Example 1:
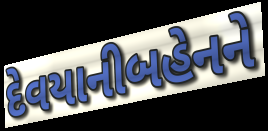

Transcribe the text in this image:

દેવયાનીબહેનને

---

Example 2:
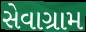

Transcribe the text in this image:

સેવાગ્રામ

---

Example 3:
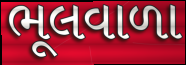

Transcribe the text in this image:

ભૂલવાળા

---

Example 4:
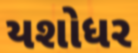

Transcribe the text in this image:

યશોધર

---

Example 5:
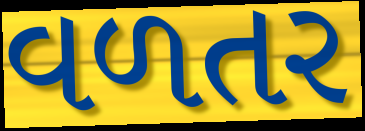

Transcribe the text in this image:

વળતર